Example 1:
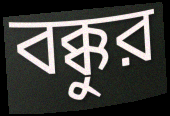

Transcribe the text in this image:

বক্কুর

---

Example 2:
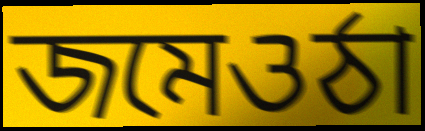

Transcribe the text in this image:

জমেওঠা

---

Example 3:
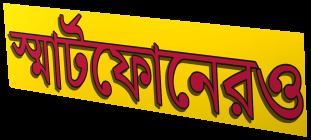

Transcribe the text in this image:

স্মার্টফোনেরও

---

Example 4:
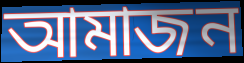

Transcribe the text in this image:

আমাজন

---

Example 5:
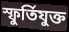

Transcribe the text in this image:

স্ফুর্তিযুক্ত